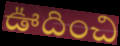
ఊదించి